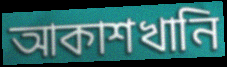
আকাশখানি